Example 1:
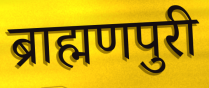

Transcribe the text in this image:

ब्राह्मणपुरी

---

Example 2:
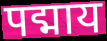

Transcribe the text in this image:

पद्माय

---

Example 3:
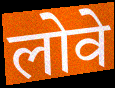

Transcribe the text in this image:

लोवे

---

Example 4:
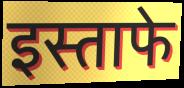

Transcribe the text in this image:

इस्ताफे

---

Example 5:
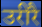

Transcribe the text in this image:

उरीरै